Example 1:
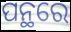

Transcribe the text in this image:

ପନ୍ଥରେ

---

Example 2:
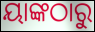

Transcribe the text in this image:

ୟାଙ୍କଠାରୁ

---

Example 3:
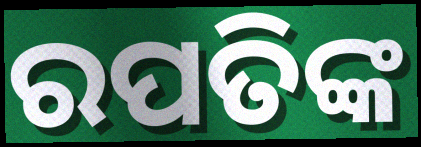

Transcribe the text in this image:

ରପତିଙ୍କ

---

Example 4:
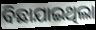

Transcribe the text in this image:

ବିଛାଯାଇଥିଲା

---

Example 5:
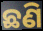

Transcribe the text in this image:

ଛଣି